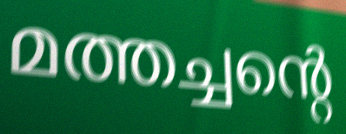
മത്തച്ചന്റെ